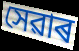
সেৱাৰ